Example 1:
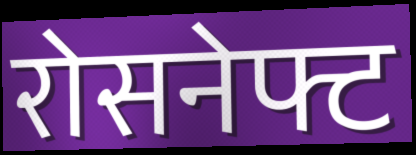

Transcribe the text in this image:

रोसनेफ्ट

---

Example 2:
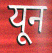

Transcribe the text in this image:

यून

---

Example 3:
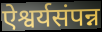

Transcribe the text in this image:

ऐश्वर्यसंपन्न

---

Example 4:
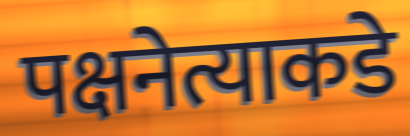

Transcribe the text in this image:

पक्षनेत्याकडे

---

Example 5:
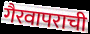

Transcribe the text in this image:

गैरवापराची